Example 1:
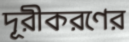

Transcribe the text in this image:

দূরীকরণের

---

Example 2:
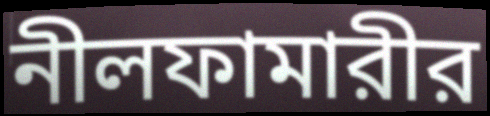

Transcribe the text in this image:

নীলফামারীর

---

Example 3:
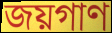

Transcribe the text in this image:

জয়গাণ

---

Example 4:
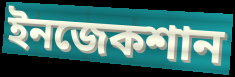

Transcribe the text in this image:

ইনজেকশান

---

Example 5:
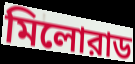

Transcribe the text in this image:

মিলোরাড